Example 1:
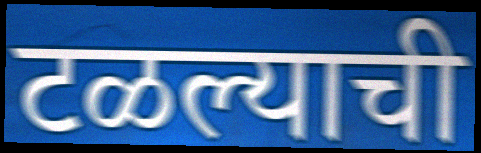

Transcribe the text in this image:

टळल्याची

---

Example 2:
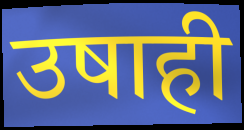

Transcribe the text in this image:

उषाही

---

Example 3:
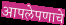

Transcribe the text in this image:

आपलेपणाचे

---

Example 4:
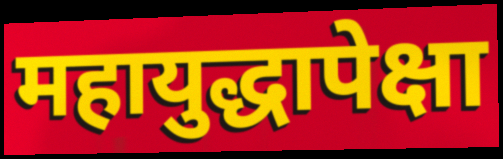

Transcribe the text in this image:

महायुद्धापेक्षा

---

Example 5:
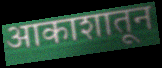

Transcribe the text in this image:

आकाशातून